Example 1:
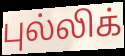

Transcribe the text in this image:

புல்லிக்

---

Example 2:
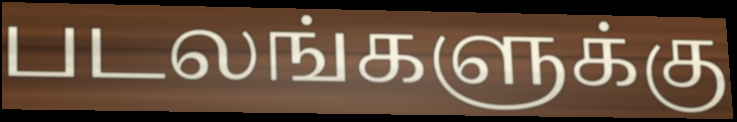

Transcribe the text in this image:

படலங்களுக்கு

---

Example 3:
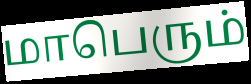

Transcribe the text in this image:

மாபெரும்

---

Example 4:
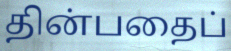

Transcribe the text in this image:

தின்பதைப்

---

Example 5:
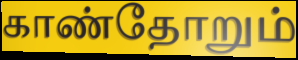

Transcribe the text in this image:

காண்தோறும்